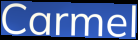
Carmel